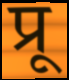
प्रू